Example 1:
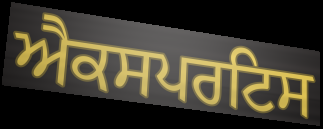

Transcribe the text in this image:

ਐਕਸਪਰਟਿਸ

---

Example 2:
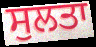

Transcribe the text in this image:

ਸੁਲਤਾ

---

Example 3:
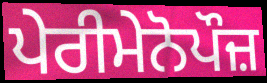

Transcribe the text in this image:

ਪੇਰੀਮੇਨੋਪੌਜ਼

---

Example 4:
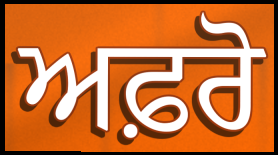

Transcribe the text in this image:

ਅਫ਼ਰੋ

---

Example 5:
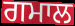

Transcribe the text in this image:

ਗਮਾਲ